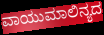
ವಾಯುಮಾಲಿನ್ಯದ